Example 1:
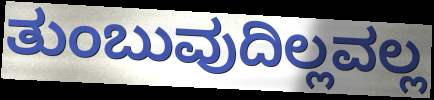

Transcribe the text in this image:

ತುಂಬುವುದಿಲ್ಲವಲ್ಲ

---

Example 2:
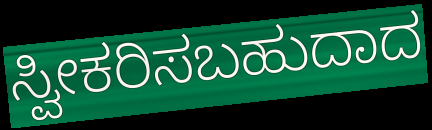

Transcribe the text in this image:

ಸ್ವೀಕರಿಸಬಹುದಾದ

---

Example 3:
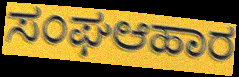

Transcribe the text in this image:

ಸಂಘಆಹಾರ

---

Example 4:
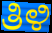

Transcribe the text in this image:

ತಿಳಿ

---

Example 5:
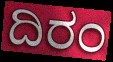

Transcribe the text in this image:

ದಿರಂ